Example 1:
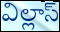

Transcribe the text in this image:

విల్లాస్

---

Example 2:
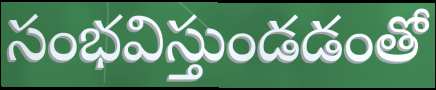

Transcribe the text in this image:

సంభవిస్తుండడంతో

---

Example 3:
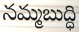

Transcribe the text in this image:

నమ్మబుద్ధి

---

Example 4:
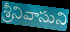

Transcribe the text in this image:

శ్రీనివాసుని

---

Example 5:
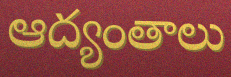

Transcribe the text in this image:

ఆద్యంతాలు